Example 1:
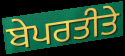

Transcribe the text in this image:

ਬੇਪਰਤੀਤੇ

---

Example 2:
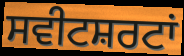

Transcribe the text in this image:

ਸਵੀਟਸ਼ਰਟਾਂ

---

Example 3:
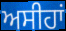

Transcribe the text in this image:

ਅਸੀਹਾਂ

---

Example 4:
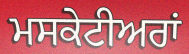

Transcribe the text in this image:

ਮਸਕੇਟੀਅਰਾਂ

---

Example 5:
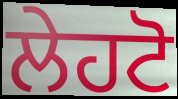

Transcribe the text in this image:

ਲੇਹਟੋ